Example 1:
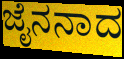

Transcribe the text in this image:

ಜೈನನಾದ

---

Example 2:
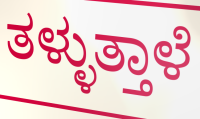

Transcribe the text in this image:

ತಳ್ಳುತ್ತಾಳೆ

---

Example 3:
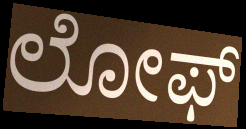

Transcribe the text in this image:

ಲೋಫ್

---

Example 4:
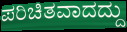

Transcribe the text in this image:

ಪರಿಚಿತವಾದದ್ದು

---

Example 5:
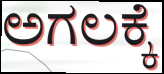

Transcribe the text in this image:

ಅಗಲಕ್ಕೆ